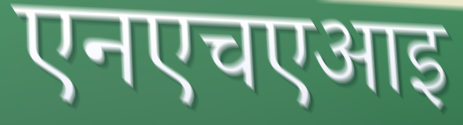
एनएचएआइ